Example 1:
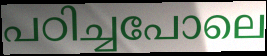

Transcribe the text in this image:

പഠിച്ചപോലെ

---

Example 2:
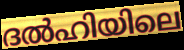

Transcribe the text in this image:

ദൽഹിയിലെ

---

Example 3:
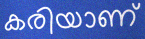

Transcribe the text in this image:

കരിയാണ്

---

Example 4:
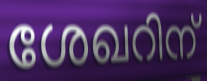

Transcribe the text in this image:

ശേഖറിന്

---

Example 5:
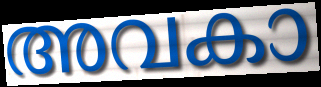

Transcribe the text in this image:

അവകാ